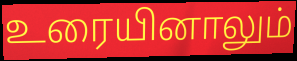
உரையினாலும்